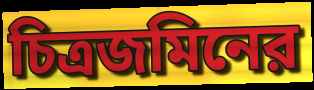
চিত্রজমিনের